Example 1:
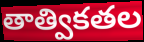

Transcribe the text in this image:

తాత్వికతల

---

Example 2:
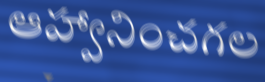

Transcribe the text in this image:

ఆహ్వానించగల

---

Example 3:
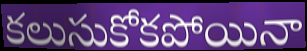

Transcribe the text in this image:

కలుసుకోకపోయినా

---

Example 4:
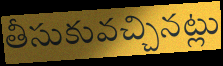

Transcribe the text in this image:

తీసుకువచ్చినట్లు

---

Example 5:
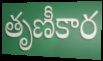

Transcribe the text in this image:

తృణీకార